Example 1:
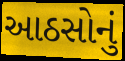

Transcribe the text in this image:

આઠસોનું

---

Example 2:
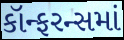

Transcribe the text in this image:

કૉન્ફરન્સમાં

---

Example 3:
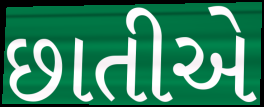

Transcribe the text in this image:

છાતીએ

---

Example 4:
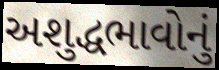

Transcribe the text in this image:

અશુદ્ધભાવોનું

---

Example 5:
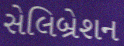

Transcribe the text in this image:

સેલિબ્રેશન